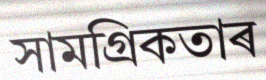
সামগ্ৰিকতাৰ